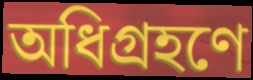
অধিগ্রহণে